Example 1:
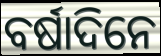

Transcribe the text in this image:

ବର୍ଷାଦିନେ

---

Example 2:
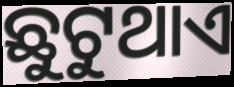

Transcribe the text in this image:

ଛୁଟୁଥାଏ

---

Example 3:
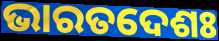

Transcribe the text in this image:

ଭାରତଦେଶଃ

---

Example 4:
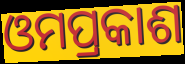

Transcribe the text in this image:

ଓମପ୍ରକାଶ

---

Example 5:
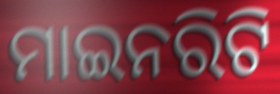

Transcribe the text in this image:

ମାଇନରିଟି